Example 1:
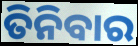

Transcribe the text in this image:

ତିନିବାର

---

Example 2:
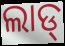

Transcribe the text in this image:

ଲାଡ୍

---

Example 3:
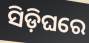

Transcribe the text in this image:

ସିଡ଼ିଘରେ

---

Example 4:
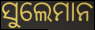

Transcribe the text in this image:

ସୁଲେମାନ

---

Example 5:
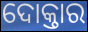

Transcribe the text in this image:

ଦୋକ୍ତାର